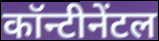
कॉन्टीनेंटल